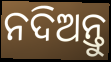
ନଦିଅନ୍ତୁ